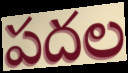
పదల